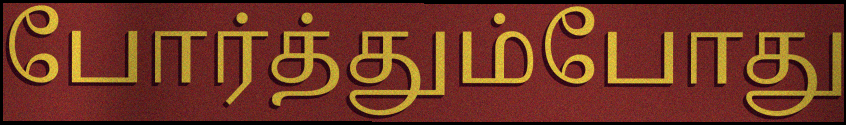
போர்த்தும்போது